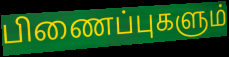
பிணைப்புகளும்